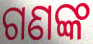
ଗଣଙ୍କ